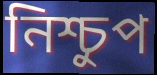
নিশ্চুপ